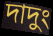
দাদুং